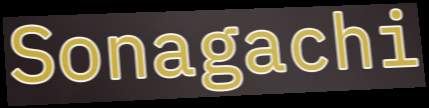
Sonagachi